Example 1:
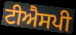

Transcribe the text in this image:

ਟੀਐਸਪੀ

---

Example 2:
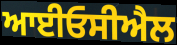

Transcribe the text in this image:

ਆਈਓਸੀਐਲ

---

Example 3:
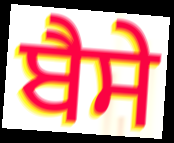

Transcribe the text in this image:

ਬੈਸੇ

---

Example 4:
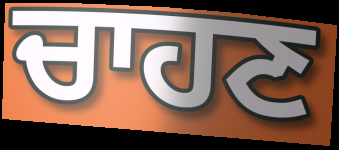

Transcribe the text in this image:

ਚਾਹਣ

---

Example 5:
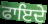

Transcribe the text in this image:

ਫਾਇਦੇ